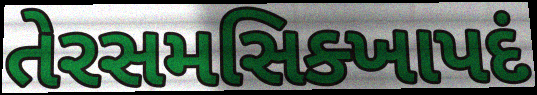
તેરસમસિક્ખાપદં